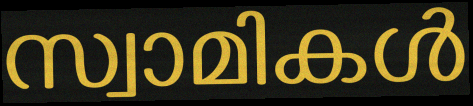
സ്വാമികൾ